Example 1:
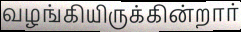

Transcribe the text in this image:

வழங்கியிருக்கின்றார்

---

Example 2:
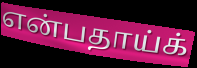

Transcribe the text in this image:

என்பதாய்க்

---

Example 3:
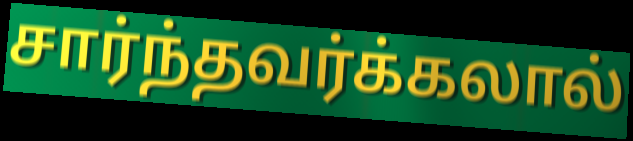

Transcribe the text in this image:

சார்ந்தவர்க்கலால்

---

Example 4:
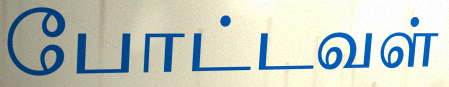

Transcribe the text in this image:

போட்டவள்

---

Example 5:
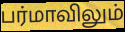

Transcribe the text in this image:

பர்மாவிலும்